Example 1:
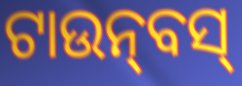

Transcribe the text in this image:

ଟାଉନ୍‍ବସ୍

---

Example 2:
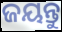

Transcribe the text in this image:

ଜୟନ୍ତୁ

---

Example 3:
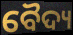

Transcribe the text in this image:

ବୈଦ୍ୟ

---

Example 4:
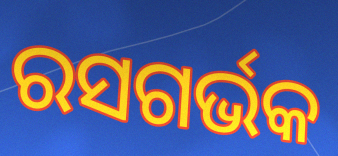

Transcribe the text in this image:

ରସଗର୍ଭକ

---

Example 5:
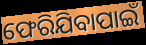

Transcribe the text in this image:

ଫେରିଯିବାପାଇଁ